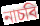
নাচবি